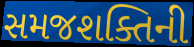
સમજશક્તિની